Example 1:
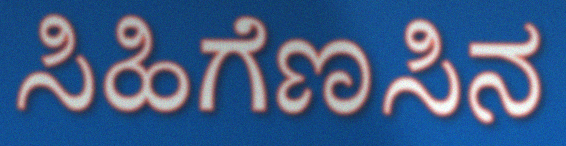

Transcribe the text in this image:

ಸಿಹಿಗೆಣಸಿನ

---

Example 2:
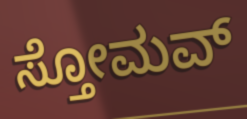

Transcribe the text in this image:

ಸ್ತೋಮವ್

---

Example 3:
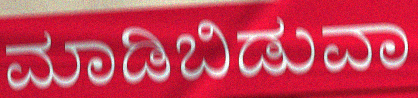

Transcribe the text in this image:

ಮಾಡಿಬಿಡುವಾ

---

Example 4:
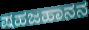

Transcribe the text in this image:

ಷಹಜಹಾನನ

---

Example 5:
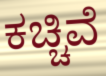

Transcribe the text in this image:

ಕಚ್ಚಿವೆ